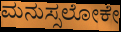
ಮನುಸ್ಸಲೋಕೇ